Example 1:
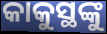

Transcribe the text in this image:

କାକୁସ୍ଥଙ୍କୁ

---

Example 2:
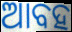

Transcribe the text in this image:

ଆବହ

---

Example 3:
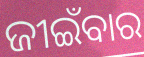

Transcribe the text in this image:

ଜୀଇଁବାର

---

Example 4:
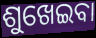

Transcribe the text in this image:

ଶୁଖେଇବା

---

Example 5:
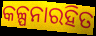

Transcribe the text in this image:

କଳ୍ପନାରହିତ